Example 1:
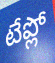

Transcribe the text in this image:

టేప్లో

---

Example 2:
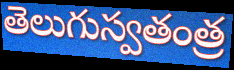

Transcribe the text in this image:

తెలుగుస్వతంత్ర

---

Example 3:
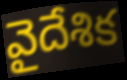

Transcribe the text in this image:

వైదేశిక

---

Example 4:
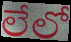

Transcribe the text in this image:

లేలో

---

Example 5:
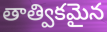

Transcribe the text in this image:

తాత్వికమైన